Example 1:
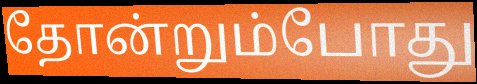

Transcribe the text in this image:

தோன்றும்போது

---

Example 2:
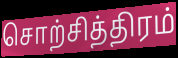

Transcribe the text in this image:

சொற்சித்திரம்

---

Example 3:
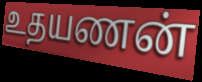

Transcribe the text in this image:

உதயணன்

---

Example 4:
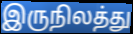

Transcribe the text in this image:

இருநிலத்து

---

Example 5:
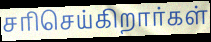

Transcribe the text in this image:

சரிசெய்கிறார்கள்